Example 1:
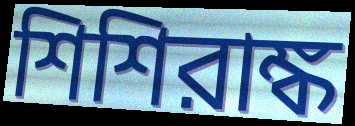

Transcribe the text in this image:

শিশিরাঙ্ক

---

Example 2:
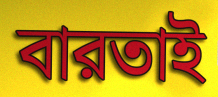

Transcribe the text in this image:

বারতাই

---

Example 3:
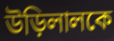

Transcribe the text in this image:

উড়িলালকে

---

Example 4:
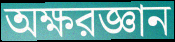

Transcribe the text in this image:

অক্ষরজ্ঞান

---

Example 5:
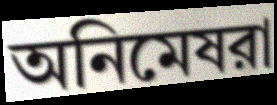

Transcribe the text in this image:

অনিমেষরা